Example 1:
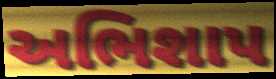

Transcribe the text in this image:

અભિશાપ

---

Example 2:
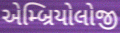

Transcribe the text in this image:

એમ્બ્રિયોલોજી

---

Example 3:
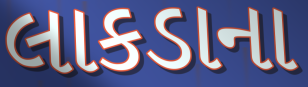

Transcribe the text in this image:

લાકડાના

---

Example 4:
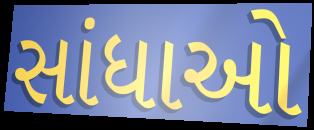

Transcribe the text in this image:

સાંધાઓ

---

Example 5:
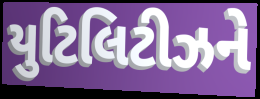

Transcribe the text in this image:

યુટિલિટીઝને